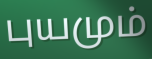
புயமும்